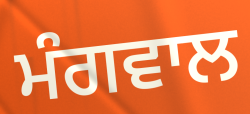
ਮੰਗਵਾਲ